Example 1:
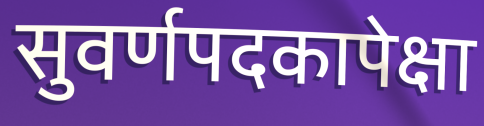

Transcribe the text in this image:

सुवर्णपदकापेक्षा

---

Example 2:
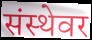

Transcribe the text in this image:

संस्थेवर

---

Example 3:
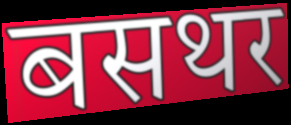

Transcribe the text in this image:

बसथर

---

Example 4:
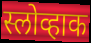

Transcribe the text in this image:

स्लोव्हाक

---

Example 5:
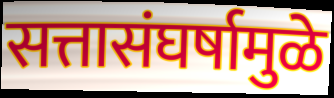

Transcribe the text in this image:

सत्तासंघर्षामुळे